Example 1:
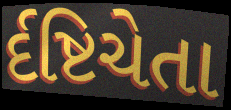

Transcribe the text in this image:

ર્દષ્ટિચેતા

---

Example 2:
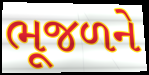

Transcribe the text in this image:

ભૂજળને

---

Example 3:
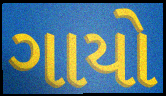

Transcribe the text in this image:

ગાયો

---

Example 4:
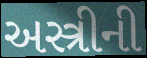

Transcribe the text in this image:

અસ્ત્રીની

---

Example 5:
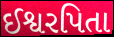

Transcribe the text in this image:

ઈશ્વરપિતા